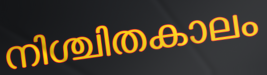
നിശ്ചിതകാലം